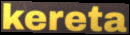
kereta